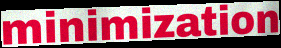
minimization